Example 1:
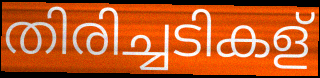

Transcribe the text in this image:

തിരിച്ചടികള്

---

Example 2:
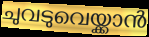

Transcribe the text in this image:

ചുവടുവെയ്ക്കാൻ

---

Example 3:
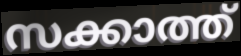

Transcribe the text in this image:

സക്കാത്ത്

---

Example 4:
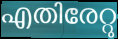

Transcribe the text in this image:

എതിരേറ്റു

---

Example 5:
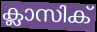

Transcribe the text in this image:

ക്ലാസിക്